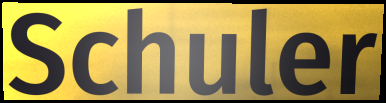
Schuler